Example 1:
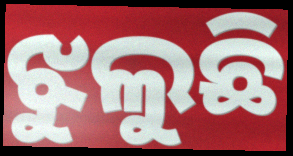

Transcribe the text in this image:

ଝୁଲୁଛି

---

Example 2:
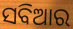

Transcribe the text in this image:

ସବିଆର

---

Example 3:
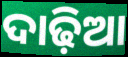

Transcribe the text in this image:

ଦାଢ଼ିଆ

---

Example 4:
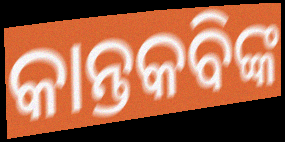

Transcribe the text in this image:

କାନ୍ତକବିଙ୍କ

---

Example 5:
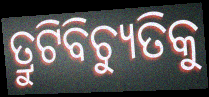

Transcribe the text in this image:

ତ୍ରୁଟିବିଚ୍ୟୁତିକୁ